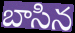
బాసిన